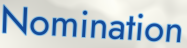
Nomination